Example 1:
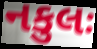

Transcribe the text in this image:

નકુલઃ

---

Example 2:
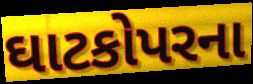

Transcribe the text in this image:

ઘાટકોપરના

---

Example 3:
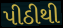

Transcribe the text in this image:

પીઠીથી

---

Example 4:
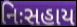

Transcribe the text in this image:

નિઃસહાય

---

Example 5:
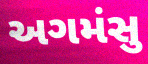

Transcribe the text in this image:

અગમંસુ